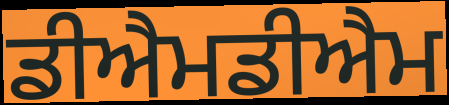
ਡੀਐਮਡੀਐਮ